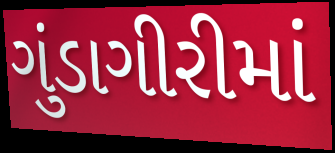
ગુંડાગીરીમાં